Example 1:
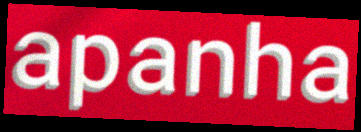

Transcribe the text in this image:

apanha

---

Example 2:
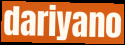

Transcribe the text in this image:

dariyano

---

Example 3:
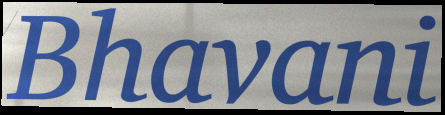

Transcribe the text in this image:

Bhavani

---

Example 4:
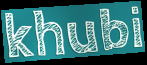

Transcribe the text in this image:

khubi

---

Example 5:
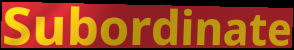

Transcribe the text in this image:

Subordinate